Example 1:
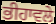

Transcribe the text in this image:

ਭੀਹਾਵਲੇ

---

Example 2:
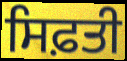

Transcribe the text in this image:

ਸਿਫ਼ਤੀ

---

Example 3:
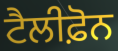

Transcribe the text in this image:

ਟੈਲੀਫ਼ੋਨ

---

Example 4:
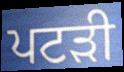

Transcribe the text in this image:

ਪਟੜੀ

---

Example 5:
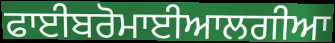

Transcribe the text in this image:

ਫਾਈਬਰੋਮਾਈਆਲਗੀਆ